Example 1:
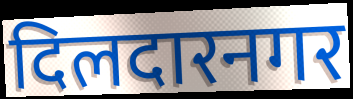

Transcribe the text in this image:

दिलदारनगर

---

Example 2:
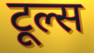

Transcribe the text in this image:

टूल्स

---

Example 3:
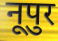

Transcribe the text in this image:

नूपुर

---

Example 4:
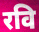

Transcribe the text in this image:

रवि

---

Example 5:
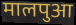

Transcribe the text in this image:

मालपुआ